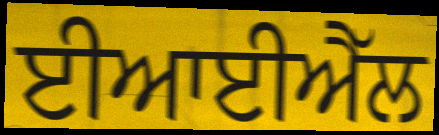
ਈਆਈਐੱਲ